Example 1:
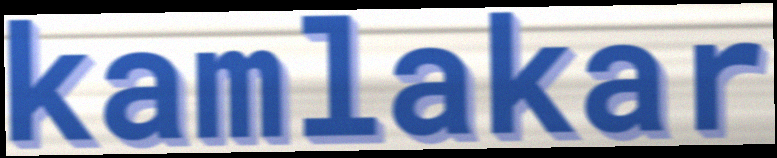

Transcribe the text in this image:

kamlakar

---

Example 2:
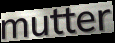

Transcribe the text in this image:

mutter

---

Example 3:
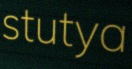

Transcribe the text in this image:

stutya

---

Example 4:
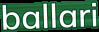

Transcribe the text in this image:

ballari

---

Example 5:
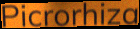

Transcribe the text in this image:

Picrorhiza